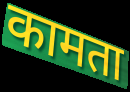
कामता